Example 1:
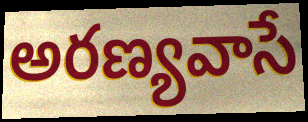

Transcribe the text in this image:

అరణ్యవాసే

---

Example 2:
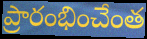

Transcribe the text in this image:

ప్రారంభించేంత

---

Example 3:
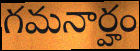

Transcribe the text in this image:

గమనార్హం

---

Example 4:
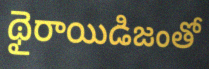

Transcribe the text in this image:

థైరాయిడిజంతో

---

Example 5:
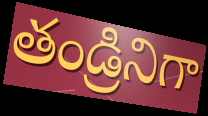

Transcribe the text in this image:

తండ్రినిగా